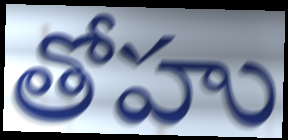
తోహు